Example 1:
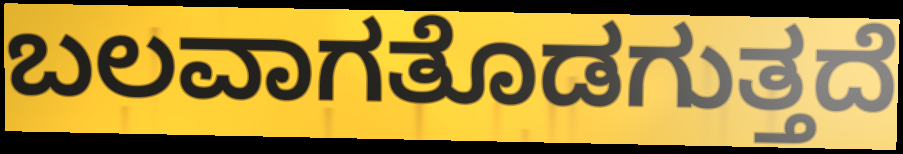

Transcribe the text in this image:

ಬಲವಾಗತೊಡಗುತ್ತದೆ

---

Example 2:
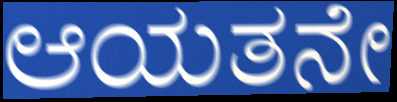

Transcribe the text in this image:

ಆಯತನೇ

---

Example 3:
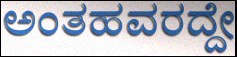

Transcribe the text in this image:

ಅಂತಹವರದ್ದೇ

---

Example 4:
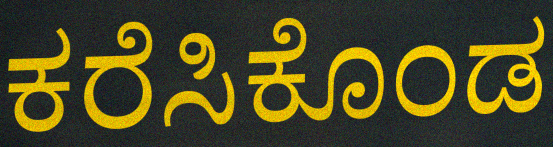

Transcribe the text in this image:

ಕರೆಸಿಕೊಂಡ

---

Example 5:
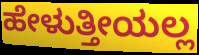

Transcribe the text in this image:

ಹೇಳುತ್ತೀಯಲ್ಲ